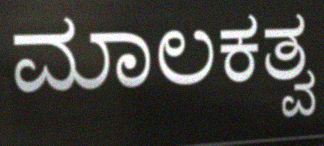
ಮಾಲಕತ್ವ